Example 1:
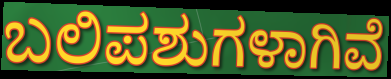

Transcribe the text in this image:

ಬಲಿಪಶುಗಳಾಗಿವೆ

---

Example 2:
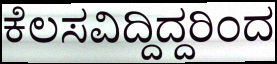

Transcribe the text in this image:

ಕೆಲಸವಿದ್ದಿದ್ದರಿಂದ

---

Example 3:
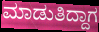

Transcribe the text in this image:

ಮಾಡುತಿದ್ದಾಗ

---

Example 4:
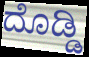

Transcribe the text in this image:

ದೊಡ್ಡಿ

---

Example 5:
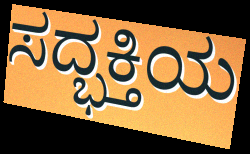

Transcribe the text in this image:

ಸದ್ಭಕ್ತಿಯ